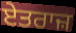
ਏਤਰਾਜ਼